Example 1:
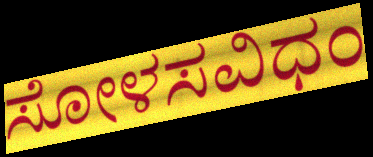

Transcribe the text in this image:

ಸೋಳಸವಿಧಂ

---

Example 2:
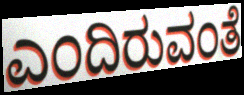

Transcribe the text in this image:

ಎಂದಿರುವಂತೆ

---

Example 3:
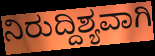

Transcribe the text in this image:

ನಿರುದ್ದಿಶ್ಯವಾಗಿ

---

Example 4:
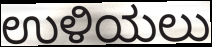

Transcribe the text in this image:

ಉಳಿಯಲು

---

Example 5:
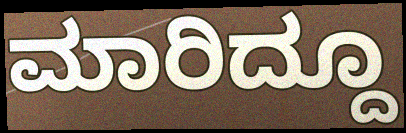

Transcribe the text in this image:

ಮಾರಿದ್ದೂ